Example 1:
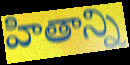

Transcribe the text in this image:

హితాన్ని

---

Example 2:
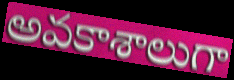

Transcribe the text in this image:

అవకాశాలుగా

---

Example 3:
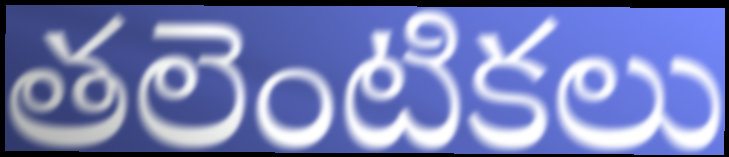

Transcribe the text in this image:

తలెంటికలు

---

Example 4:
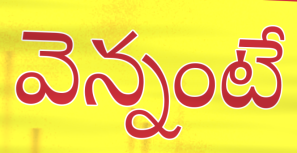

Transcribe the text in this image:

వెన్నంటే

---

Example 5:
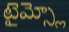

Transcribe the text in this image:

టైమ్స్లో